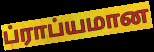
ப்ராப்யமான